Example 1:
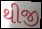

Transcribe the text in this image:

થીજી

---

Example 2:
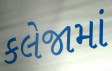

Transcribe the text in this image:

કલેજામાં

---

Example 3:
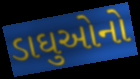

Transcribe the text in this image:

ડાઘુઓનો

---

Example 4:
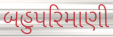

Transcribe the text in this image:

બહુપરિમાણી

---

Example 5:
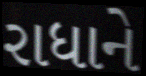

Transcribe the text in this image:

રાધાને